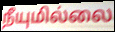
நீயுமில்லை